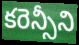
కరెన్సీని